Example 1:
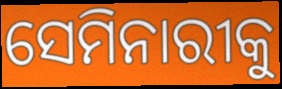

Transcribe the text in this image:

ସେମିନାରୀକୁ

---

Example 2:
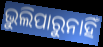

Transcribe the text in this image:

ଭୁଲିପାରୁନାହିଁ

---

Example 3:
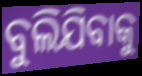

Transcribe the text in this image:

ବୁଲିଯିବାକୁ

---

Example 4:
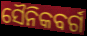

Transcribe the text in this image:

ସୈନିକବର୍ଗ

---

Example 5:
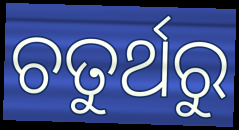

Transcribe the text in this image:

ଚତୁର୍ଥରୁ